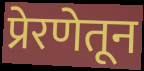
प्रेरणेतून